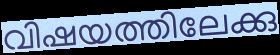
വിഷയത്തിലേക്കു